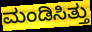
ಮಂಡಿಸಿತ್ತು